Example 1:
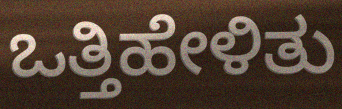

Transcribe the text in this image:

ಒತ್ತಿಹೇಳಿತು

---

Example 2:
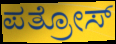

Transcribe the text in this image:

ಪತ್ರೋಸ್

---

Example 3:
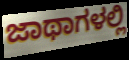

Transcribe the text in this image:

ಜಾಥಾಗಳಲ್ಲಿ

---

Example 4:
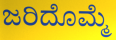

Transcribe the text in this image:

ಜರಿದೊಮ್ಮೆ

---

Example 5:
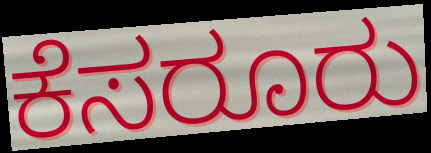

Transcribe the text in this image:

ಕೆಸರೂರು